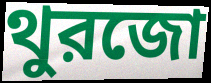
থুরজো